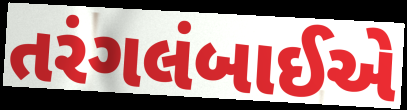
તરંગલંબાઈએ